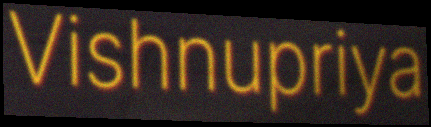
Vishnupriya